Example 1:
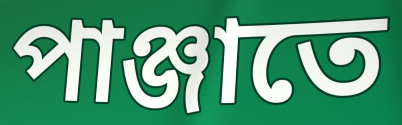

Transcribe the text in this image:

পাঞ্জাতে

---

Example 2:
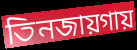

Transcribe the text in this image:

তিনজায়গায়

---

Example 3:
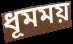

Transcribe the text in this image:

ধূমময়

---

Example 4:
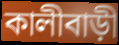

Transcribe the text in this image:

কালীবাড়ী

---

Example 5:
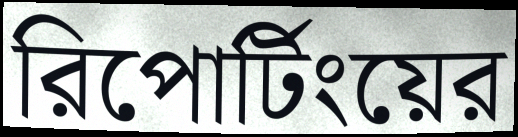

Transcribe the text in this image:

রিপোর্টিংয়ের